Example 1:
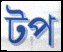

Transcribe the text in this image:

টপ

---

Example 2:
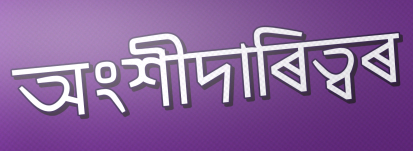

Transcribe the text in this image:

অংশীদাৰিত্বৰ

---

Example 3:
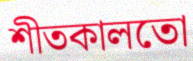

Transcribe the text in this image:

শীতকালতো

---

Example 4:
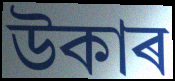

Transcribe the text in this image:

উকাৰ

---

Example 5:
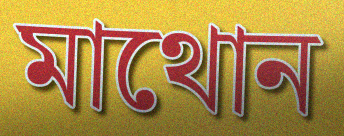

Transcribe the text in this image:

মাথোন